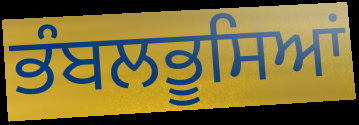
ਭੰਬਲਭੂਸਿਆਂ